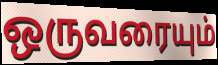
ஒருவரையும்